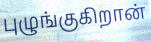
புழுங்குகிறான்